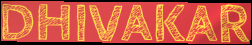
DHIVAKAR